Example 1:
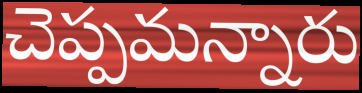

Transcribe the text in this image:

చెప్పమన్నారు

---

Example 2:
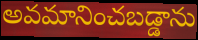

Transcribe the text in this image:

అవమానించబడ్డాను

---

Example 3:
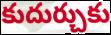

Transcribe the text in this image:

కుదుర్చుకు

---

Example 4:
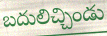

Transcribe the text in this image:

బదులిచ్చిండు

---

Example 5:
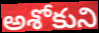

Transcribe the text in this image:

అశోకుని